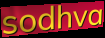
sodhva